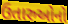
ઉતારુઓનો